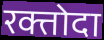
रक्तोदा